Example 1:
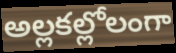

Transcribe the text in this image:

అల్లకల్లోలంగా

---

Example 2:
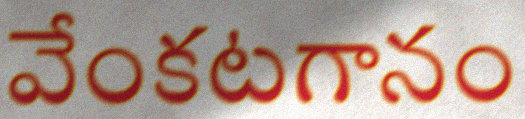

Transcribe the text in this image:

వేంకటగానం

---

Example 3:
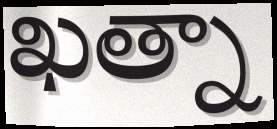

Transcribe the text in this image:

ఖత్నా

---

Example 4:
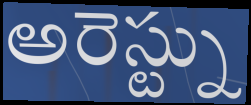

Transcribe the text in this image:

అరెస్ట్ను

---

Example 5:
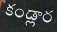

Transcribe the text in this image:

కండ్లార